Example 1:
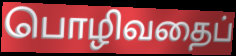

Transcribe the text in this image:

பொழிவதைப்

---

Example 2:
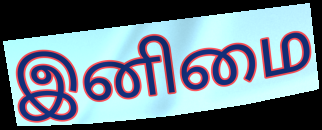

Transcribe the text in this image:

இனிமை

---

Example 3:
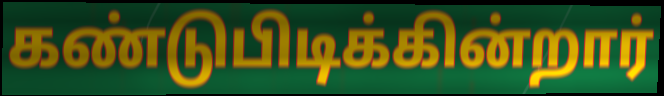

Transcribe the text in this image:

கண்டுபிடிக்கின்றார்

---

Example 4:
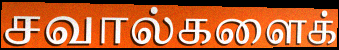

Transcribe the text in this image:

சவால்களைக்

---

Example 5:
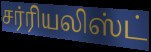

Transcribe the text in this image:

சர்ரியலிஸ்ட்